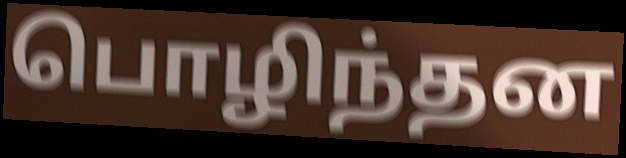
பொழிந்தன